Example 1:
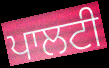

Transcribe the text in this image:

ਪਾਲਟੀ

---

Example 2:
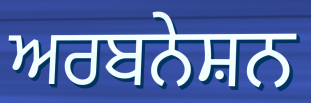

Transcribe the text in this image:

ਅਰਬਨੇਸ਼ਨ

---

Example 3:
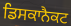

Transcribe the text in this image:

ਡਿਸਕਾਨੈਕਟ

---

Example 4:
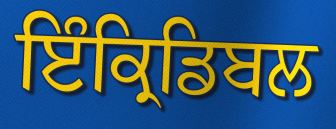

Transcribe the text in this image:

ਇੰਕ੍ਰਿਡਿਬਲ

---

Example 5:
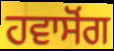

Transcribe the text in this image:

ਹਵਾਸੋਂਗ